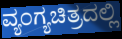
ವ್ಯಂಗ್ಯಚಿತ್ರದಲ್ಲಿ